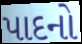
પાદનો